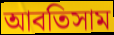
আবতিসাম